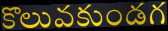
కొలువకుండగ